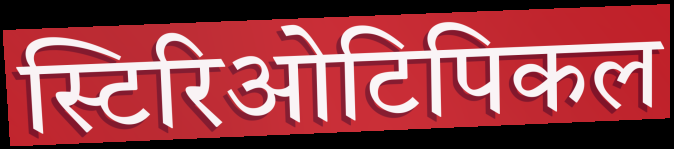
स्टिरिओटिपिकल